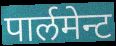
पार्लमेन्ट